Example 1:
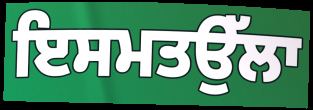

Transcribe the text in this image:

ਇਸਮਤਉੱਲਾ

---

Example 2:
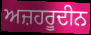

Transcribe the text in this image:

ਅਜ਼ਹਰੂਦੀਨ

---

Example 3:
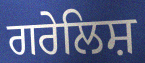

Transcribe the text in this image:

ਗਰੇਲਿਸ਼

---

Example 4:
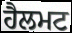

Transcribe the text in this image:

ਹੈਲਮਟ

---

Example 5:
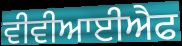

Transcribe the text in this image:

ਵੀਵੀਆਈਐਫ